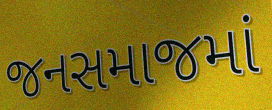
જનસમાજમાં